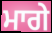
ਮਾਗੇ